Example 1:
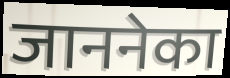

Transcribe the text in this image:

जाननेका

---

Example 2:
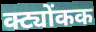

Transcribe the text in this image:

क्ट्योंकक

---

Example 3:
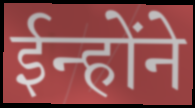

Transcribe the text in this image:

ईन्होंने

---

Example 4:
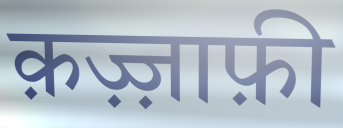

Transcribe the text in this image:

क़ज़्ज़ाफ़ी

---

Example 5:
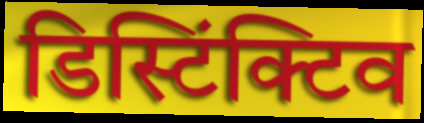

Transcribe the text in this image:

डिस्टिंक्टिव